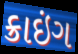
ક્રાઇંગ